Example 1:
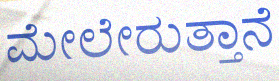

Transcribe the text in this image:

ಮೇಲೇರುತ್ತಾನೆ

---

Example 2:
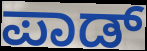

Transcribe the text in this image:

ಪಾಡ್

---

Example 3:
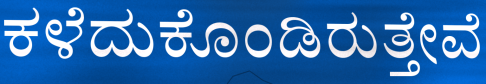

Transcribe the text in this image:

ಕಳೆದುಕೊಂಡಿರುತ್ತೇವೆ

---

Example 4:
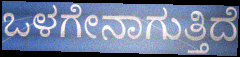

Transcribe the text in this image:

ಒಳಗೇನಾಗುತ್ತಿದೆ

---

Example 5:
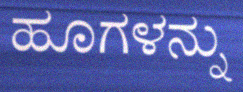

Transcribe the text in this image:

ಹೂಗಳನ್ನು